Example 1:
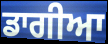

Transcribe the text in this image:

ਡਾਗੀਆ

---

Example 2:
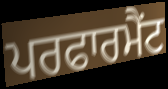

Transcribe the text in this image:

ਪਰਫਾਰਮੈਂਟ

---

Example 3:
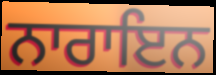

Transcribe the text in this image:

ਨਾਰਾਇਨ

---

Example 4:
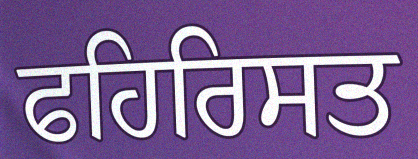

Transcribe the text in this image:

ਫਹਿਰਿਸਤ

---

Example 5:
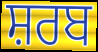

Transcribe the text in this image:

ਸ਼ਰਬ